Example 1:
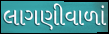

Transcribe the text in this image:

લાગણીવાળાં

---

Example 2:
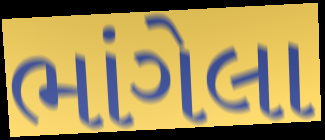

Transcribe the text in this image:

ભાંગેલા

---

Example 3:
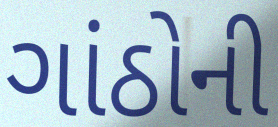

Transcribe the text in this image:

ગાંઠોની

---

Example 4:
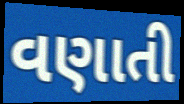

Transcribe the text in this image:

વણાતી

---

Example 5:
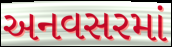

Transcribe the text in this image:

અનવસરમાં